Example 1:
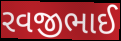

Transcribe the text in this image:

રવજીભાઈ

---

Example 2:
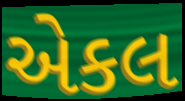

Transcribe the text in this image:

એકલ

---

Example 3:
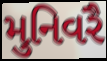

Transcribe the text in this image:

મુનિવરૈ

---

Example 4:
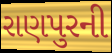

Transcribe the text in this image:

રાણપુરની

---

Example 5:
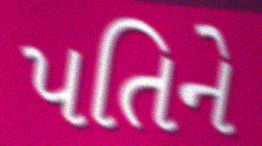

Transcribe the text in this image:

પતિને